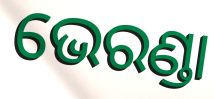
ଭେରଣ୍ଡା